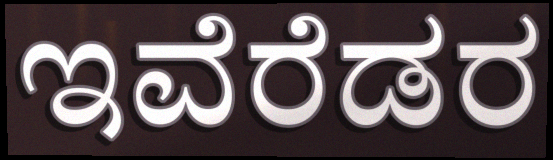
ಇವೆರೆಡರ